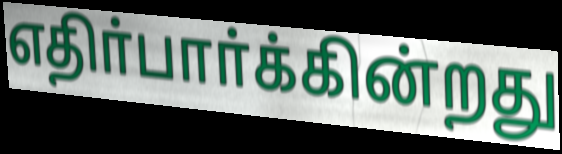
எதிர்பார்க்கின்றது